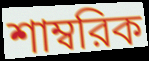
শাম্বরিক